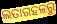
ଲତାଗହଳରୁ